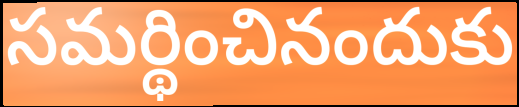
సమర్థించినందుకు